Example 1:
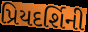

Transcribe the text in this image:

પ્રિયદર્શિની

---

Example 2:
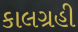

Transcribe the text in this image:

કાલગ્રહી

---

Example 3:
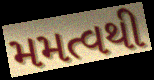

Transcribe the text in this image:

મમત્વથી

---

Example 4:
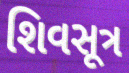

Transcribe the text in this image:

શિવસૂત્ર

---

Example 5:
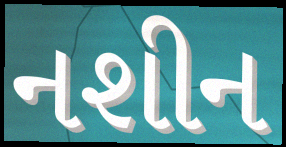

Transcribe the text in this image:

નશીન